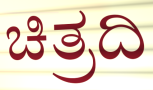
ಚಿತ್ರದಿ